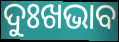
ଦୁଃଖଭାବ